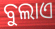
ବୁଲାଏ